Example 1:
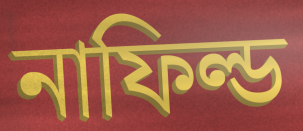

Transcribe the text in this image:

নাফিল্ড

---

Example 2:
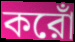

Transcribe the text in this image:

করোঁ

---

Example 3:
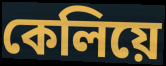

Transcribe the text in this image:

কেলিয়ে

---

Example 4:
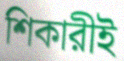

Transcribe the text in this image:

শিকারীই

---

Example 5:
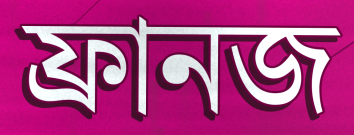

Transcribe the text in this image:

ফ্রানজ